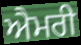
ਐਮਰੀ